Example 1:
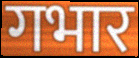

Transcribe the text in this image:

गभार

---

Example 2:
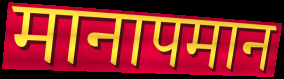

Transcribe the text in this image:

मानापमान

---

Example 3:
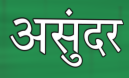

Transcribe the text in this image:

असुंदर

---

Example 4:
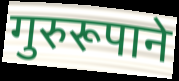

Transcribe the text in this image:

गुरुरूपाने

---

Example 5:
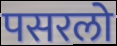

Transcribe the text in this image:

पसरलो